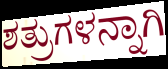
ಶತ್ರುಗಳನ್ನಾಗಿ